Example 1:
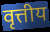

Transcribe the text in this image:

वृत्तीय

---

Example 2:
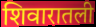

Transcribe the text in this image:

शिवारातली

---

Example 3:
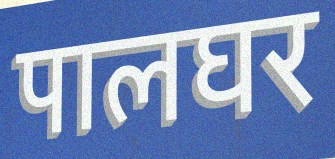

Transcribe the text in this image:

पालघर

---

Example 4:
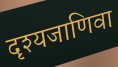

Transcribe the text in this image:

दृश्यजाणिवा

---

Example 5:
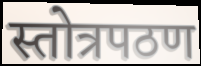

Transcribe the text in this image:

स्तोत्रपठण